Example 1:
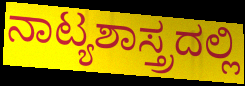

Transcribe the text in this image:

ನಾಟ್ಯಶಾಸ್ತ್ರದಲ್ಲಿ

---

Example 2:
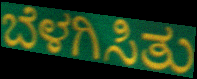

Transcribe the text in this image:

ಬೆಳಗಿಸಿತು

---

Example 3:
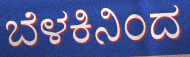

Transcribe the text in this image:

ಬೆಳಕಿನಿಂದ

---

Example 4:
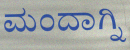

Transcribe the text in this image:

ಮಂದಾಗ್ನಿ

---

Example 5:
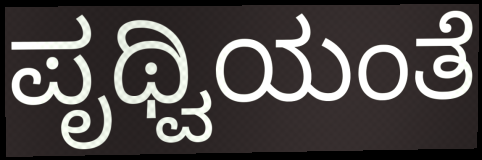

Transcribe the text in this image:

ಪೃಥ್ವಿಯಂತೆ